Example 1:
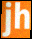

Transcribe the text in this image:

jh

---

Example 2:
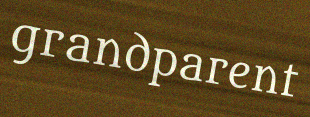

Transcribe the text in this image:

grandparent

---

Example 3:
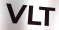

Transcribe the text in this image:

VLT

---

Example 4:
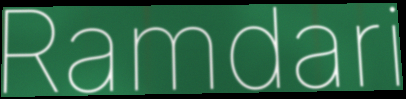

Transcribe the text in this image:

Ramdari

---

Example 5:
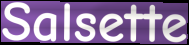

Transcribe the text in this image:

Salsette